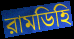
রামডিহি